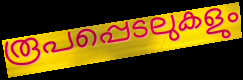
രൂപപ്പെടലുകളും